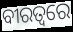
ବୀରତ୍ୱରେ